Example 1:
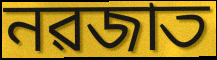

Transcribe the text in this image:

নৱজাত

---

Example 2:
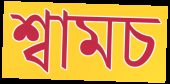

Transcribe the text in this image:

শ্বামচ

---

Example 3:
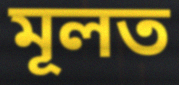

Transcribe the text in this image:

মূলত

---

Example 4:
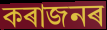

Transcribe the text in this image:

কৰাজনৰ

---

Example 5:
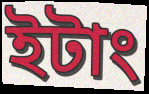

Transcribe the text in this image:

ইটাং